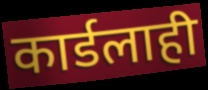
कार्डलाही